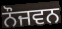
ਨੌਜਵਨ